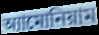
অ্যামোনিয়াম